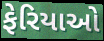
ફેરિયાઓ